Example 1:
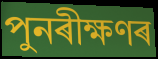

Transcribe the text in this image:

পুনৰীক্ষণৰ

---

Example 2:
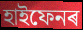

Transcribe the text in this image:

হাইফেনৰ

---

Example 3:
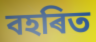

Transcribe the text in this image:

বহৰিত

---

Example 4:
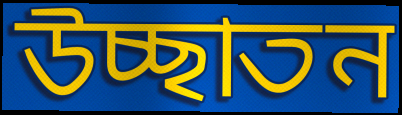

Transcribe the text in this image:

উচ্ছাতন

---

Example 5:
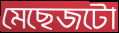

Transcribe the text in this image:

মেছেজটো